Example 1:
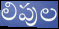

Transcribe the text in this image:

లిపుల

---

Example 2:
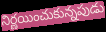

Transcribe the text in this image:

నిర్ణయించుకున్నపుడు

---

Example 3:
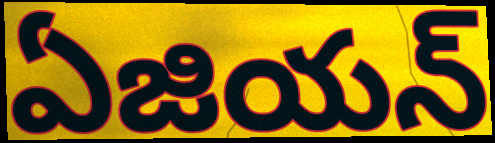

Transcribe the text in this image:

ఏజియన్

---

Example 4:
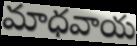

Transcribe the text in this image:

మాధవాయ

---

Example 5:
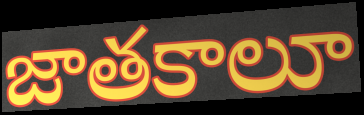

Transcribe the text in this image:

జాతకాలూ